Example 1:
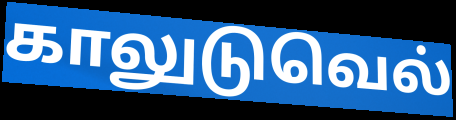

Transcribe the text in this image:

காலுடுவெல்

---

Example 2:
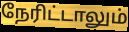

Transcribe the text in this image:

நேரிட்டாலும்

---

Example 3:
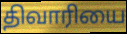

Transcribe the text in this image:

திவாரியை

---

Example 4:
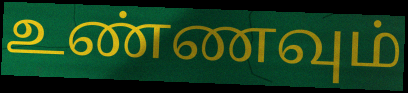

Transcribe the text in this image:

உண்ணவும்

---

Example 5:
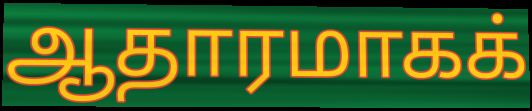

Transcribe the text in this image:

ஆதாரமாகக்